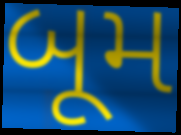
બૂમ